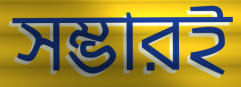
সম্ভারই